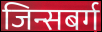
जिन्सबर्ग